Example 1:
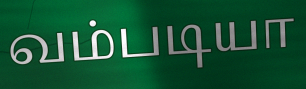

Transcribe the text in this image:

வம்படியா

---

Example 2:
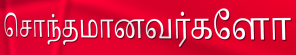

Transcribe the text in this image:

சொந்தமானவர்களோ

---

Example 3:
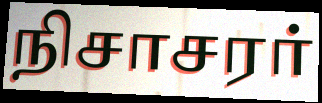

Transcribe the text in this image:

நிசாசரர்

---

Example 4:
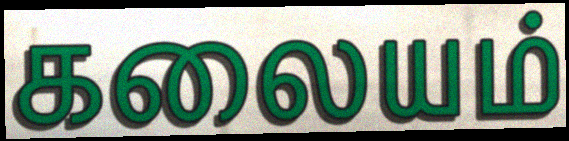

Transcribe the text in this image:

கலையம்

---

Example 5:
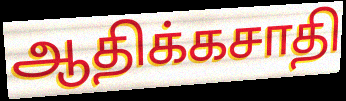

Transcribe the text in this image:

ஆதிக்கசாதி